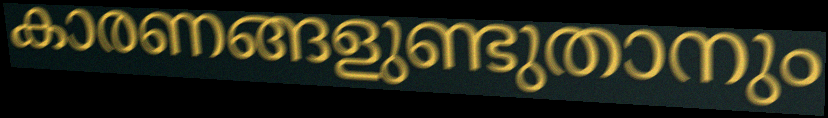
കാരണങ്ങളുണ്ടുതാനും